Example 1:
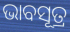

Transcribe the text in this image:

ଭାବସୂତ୍ର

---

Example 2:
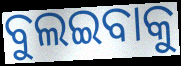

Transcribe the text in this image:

ବୁଲଇବାକୁ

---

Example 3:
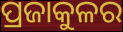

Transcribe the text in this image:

ପ୍ରଜାକୁଳର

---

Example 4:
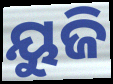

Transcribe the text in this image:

ୟୁଜି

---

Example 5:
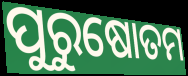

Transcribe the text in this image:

ପୁରୁଷୋତମ